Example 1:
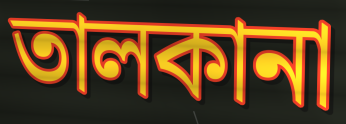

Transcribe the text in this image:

তালকানা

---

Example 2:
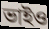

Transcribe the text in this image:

ভাইও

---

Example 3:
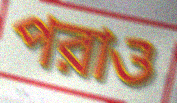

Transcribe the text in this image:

পরাও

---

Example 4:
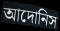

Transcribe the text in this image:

আদোনিস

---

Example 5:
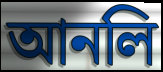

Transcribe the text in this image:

আনলি